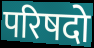
परिषदो